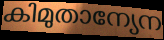
കിമുതാന്യേന